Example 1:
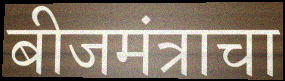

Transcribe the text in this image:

बीजमंत्राचा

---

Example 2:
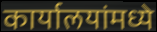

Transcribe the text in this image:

कार्यालयांमध्ये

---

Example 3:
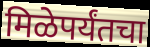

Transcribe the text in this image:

मिळेपर्यंतचा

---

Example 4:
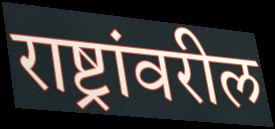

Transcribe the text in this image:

राष्ट्रांवरील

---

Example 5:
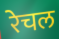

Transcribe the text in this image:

रेचल